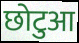
छोटुआ